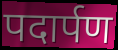
पदार्पण